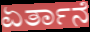
ಏರ್ತಾನೆ